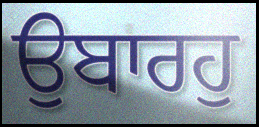
ਉਬਾਰਹੁ